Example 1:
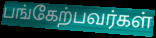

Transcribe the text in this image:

பங்கேற்பவர்கள்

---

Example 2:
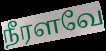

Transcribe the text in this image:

நீரளவே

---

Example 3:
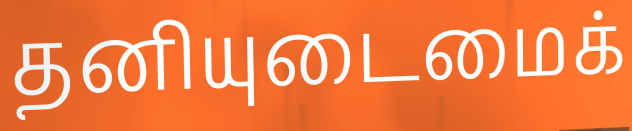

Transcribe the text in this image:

தனியுடைமைக்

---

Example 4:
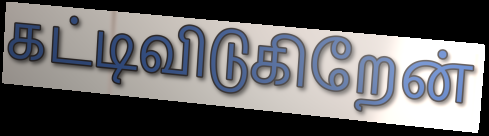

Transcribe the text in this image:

கட்டிவிடுகிறேன்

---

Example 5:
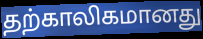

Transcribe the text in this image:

தற்காலிகமானது